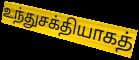
உந்துசக்தியாகத்